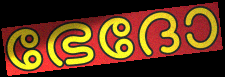
ഭേദോ